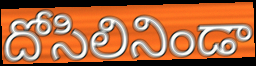
దోసిలినిండా